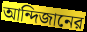
আন্দিজানের